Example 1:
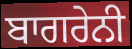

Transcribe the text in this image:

ਬਾਗਰੇਨੀ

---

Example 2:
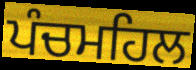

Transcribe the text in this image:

ਪੰਚਮਹਿਲ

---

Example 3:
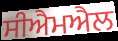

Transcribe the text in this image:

ਸੀਐਮਐਲ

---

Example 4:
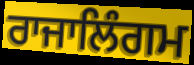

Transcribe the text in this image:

ਰਾਜਾਲਿੰਗਮ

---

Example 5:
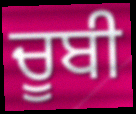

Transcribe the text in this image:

ਚੂਬੀ